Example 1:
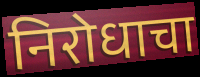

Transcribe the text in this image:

निरोधाचा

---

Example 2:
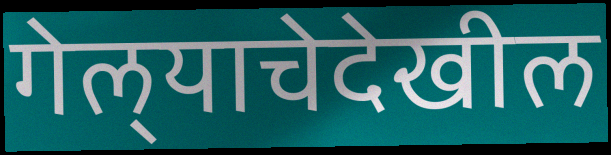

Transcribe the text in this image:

गेल्याचेदेखील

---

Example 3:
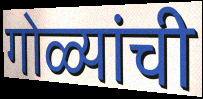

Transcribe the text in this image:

गोळ्यांची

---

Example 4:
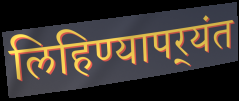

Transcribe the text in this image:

लिहिण्यापर्यंत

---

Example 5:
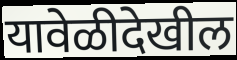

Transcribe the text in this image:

यावेळीदेखील